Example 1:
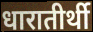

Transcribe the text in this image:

धारातीर्थी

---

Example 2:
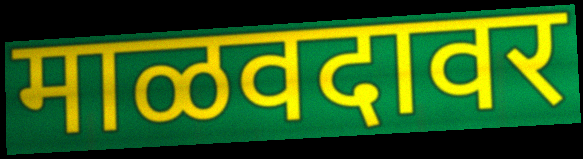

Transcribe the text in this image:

माळवदावर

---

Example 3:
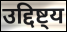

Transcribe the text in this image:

उद्दिष्ट्य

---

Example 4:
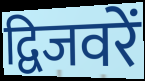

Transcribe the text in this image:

द्विजवरें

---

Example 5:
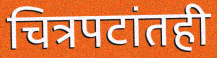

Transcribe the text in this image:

चित्रपटांतही